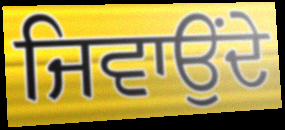
ਜਿਵਾਉਂਦੇ